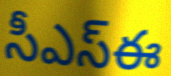
సీఎస్ఈ